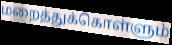
மறைத்துக்கொள்ளும்